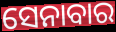
ସେନାବାର